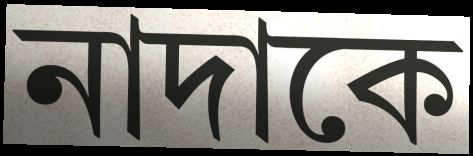
নাদাকে